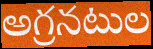
అగ్రనటుల